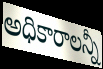
అధికారాలన్నీ